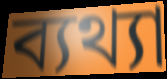
ব্যথ্যা